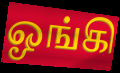
ஓங்கி